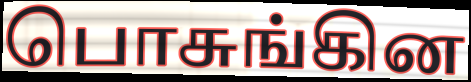
பொசுங்கின